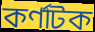
কর্ণাটক